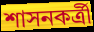
শাসনকর্ত্রী